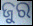
ଜୁର